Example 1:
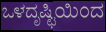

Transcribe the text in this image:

ಒಳದೃಷ್ಟಿಯಿಂದ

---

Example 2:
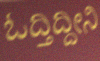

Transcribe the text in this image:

ಓದ್ತಿದ್ದೀನಿ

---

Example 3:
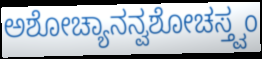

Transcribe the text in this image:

ಅಶೋಚ್ಯಾನನ್ವಶೋಚಸ್ತ್ವಂ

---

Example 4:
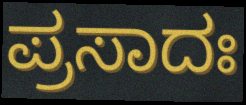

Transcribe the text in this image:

ಪ್ರಸಾದಃ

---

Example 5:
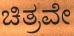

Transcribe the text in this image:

ಚಿತ್ರವೇ